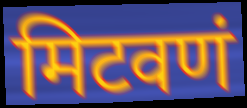
मिटवणं